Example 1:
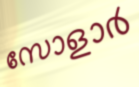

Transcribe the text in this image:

സോളാർ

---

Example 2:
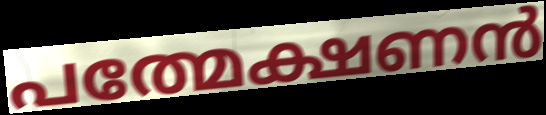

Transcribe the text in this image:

പത്മേക്ഷണൻ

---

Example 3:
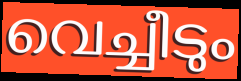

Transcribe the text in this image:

വെച്ചീടും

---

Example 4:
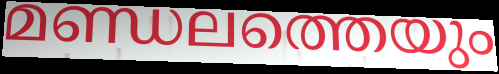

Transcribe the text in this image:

മണ്ഡലത്തെയും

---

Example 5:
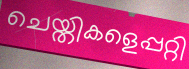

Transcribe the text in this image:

ചെയ്തികളെപ്പറ്റി